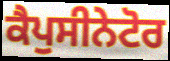
ਕੈਪੁਸੀਨੇਟੋਰ